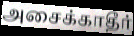
அசைக்காதீர்